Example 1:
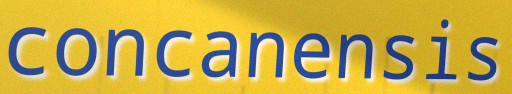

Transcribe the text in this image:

concanensis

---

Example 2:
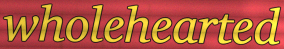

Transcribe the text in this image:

wholehearted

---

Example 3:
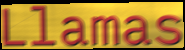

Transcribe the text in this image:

Llamas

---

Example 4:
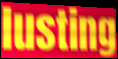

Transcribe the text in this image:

lusting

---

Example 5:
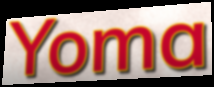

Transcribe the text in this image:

Yoma